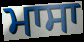
ਮਾਸਾ